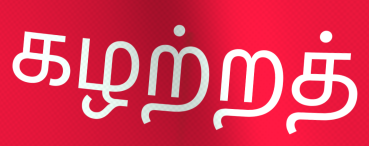
கழற்றத்